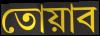
তোয়াব